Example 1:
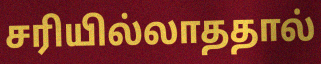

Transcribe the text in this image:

சரியில்லாததால்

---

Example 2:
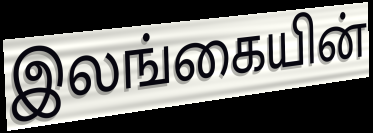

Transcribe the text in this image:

இலங்கையின்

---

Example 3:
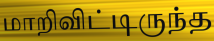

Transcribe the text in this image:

மாறிவிட்டிருந்த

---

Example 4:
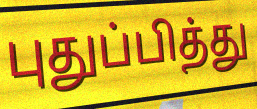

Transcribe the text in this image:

புதுப்பித்து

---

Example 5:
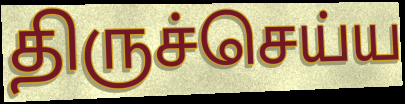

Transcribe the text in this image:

திருச்செய்ய